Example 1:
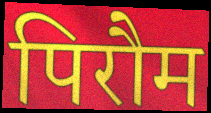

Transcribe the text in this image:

पिरौम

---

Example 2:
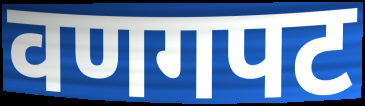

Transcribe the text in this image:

वणगपट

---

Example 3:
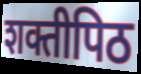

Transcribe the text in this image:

शक्तीपिठ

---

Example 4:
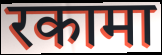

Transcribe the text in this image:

रकामा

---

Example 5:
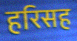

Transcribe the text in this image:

हरिसह